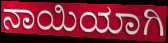
ನಾಯಿಯಾಗಿ